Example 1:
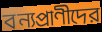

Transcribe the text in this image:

বন্যপ্রাণীদের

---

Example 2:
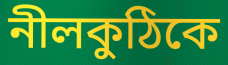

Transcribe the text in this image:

নীলকুঠিকে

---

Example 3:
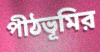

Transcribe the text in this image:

পীঠভূমির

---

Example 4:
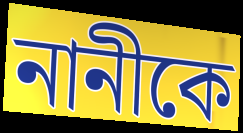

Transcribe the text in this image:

নানীকে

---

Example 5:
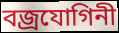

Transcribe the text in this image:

বজ্রযোগিনী